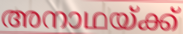
അനാഥയ്ക്ക്